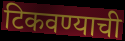
टिकवण्याची